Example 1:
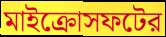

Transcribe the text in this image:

মাইক্রোসফটের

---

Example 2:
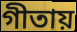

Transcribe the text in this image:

গীতায়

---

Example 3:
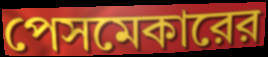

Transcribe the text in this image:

পেসমেকারের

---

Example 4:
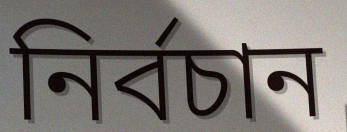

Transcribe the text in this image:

নির্বচান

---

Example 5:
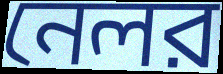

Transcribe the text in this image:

নেলর